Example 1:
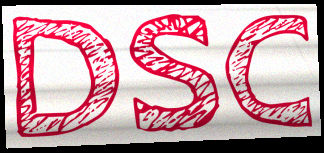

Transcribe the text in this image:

DSC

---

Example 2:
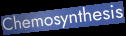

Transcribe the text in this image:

Chemosynthesis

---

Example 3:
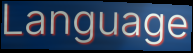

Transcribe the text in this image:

Language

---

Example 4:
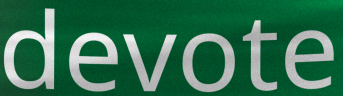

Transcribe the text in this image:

devote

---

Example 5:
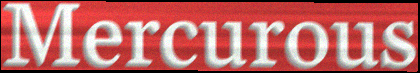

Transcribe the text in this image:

Mercurous